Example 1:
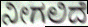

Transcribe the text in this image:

ನೀಗಲಿದೆ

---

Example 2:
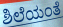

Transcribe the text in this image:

ಶಿಲೆಯಂತೆ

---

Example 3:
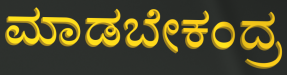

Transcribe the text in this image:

ಮಾಡಬೇಕಂದ್ರ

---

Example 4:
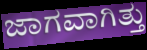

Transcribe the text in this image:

ಜಾಗವಾಗಿತ್ತು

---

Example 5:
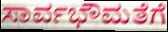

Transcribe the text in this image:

ಸಾರ್ವಭೌಮತೆಗೆ